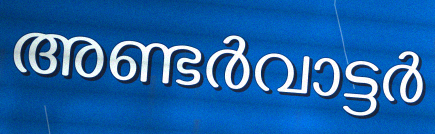
അണ്ടർവാട്ടർ